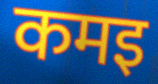
कमइ